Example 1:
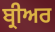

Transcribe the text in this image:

ਬ੍ਰੀਅਰ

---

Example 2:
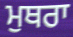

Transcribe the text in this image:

ਮੁਥਰਾ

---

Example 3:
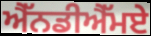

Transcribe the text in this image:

ਐੱਨਡੀਐੱਮਏ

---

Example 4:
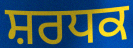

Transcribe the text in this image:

ਸ਼ਰਧਕ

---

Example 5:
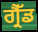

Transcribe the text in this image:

ਗ੍ਰੈੱਡ